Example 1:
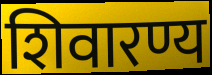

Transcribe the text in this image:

शिवारण्य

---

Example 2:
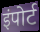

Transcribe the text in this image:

इंपोर्ट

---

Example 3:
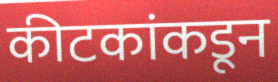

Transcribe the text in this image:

कीटकांकडून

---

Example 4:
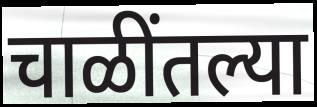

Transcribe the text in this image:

चाळींतल्या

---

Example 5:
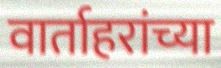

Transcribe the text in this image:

वार्ताहरांच्या